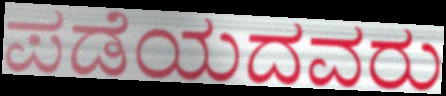
ಪಡೆಯದವರು